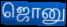
ஜொனு